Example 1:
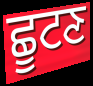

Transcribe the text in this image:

ਛੂਟਣ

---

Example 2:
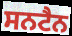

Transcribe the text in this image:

ਸਨਟੈਨ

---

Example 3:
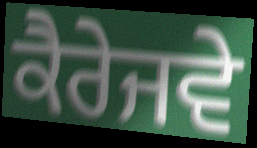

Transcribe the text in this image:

ਕੈਰੇਜਵੇ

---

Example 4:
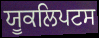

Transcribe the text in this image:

ਯੂਕਲਿਪਟਸ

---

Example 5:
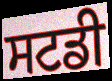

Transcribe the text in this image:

ਸਟਡੀ